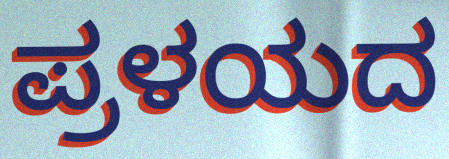
ಪ್ರಳಯದ